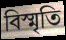
বিস্মৃতি